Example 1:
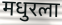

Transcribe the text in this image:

मधुरला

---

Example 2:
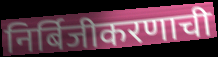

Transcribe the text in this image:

निर्बिजीकरणाची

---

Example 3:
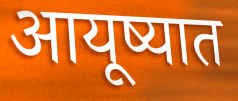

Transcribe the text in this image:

आयूष्यात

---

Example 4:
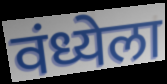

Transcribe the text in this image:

वंध्येला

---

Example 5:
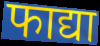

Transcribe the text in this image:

फाद्या